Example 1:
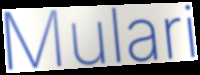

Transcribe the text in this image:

Mulari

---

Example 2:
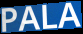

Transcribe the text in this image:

PALA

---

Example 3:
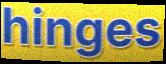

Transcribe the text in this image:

hinges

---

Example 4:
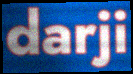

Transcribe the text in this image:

darji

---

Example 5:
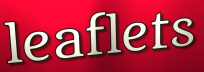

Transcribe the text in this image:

leaflets